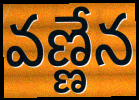
వణ్ణేన